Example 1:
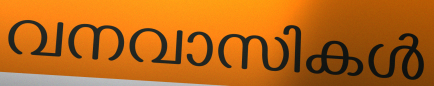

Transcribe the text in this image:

വനവാസികൾ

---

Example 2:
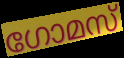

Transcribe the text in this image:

ഗോമസ്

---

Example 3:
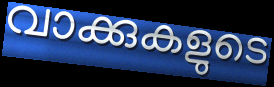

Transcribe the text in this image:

വാക്കുകളുടെ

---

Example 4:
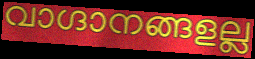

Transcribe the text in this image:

വാഗ്ദാനങ്ങളല്ല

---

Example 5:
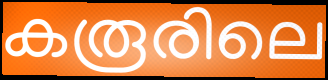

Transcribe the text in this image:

കരൂരിലെ